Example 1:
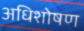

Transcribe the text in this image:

अधिशोषण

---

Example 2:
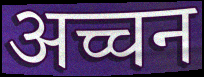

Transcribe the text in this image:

अच्चन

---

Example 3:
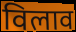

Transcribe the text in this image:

विलाव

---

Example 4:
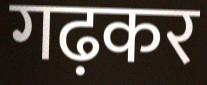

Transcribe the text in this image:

गढ़कर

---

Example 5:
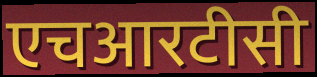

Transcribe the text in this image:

एचआरटीसी